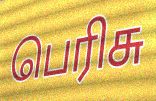
பெரிசு